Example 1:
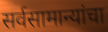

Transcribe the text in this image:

सर्वसामान्यांचा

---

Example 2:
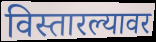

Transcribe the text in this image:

विस्तारल्यावर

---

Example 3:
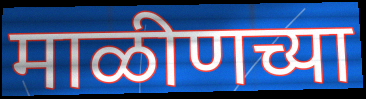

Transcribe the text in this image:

माळीणच्या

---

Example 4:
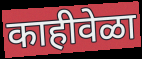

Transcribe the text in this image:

काहीवेळा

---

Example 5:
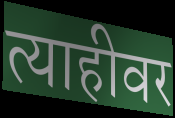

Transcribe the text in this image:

त्याहीवर